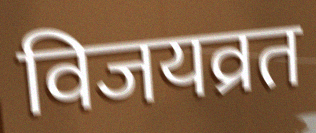
विजयव्रत